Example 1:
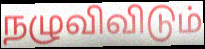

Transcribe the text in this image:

நழுவிவிடும்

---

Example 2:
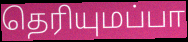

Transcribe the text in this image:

தெரியுமப்பா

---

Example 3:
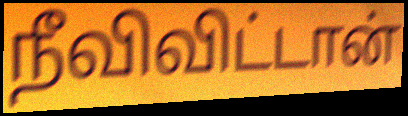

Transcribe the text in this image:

நீவிவிட்டான்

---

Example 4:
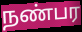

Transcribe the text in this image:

நண்பர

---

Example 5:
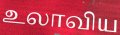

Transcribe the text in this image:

உலாவிய